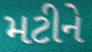
મટીને